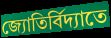
জ্যোতির্বিদ্যাতে